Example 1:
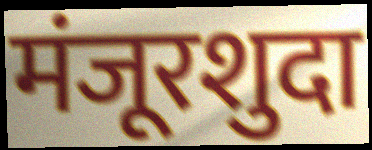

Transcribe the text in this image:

मंजूरशुदा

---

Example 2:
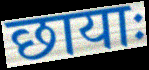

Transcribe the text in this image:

छायाः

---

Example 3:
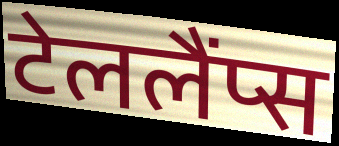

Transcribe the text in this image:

टेललैंप्स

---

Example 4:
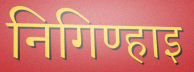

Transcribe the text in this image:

निगिण्हाइ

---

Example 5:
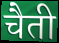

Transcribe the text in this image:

चैती